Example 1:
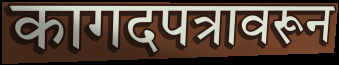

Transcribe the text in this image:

कागदपत्रावरून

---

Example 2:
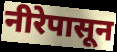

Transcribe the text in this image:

नीरेपासून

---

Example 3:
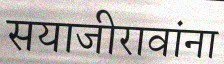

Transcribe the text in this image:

सयाजीरावांना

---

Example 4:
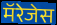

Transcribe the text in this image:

मॅरेजेस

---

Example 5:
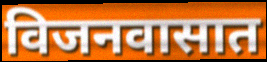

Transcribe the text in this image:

विजनवासात